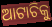
ଆଟାଚିକୁ